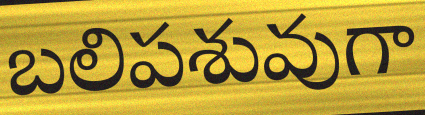
బలిపశువుగా